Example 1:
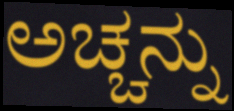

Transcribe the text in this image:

ಅಚ್ಚನ್ನು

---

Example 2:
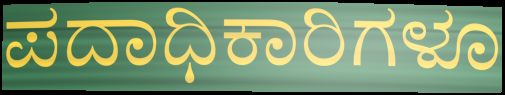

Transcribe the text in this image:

ಪದಾಧಿಕಾರಿಗಳೂ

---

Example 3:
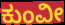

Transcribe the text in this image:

ಕುಂವೀ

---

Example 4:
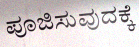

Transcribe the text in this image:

ಪೂಜಿಸುವುದಕ್ಕೆ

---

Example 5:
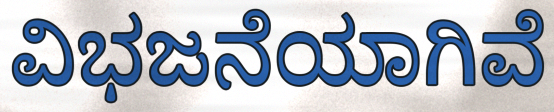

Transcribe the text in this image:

ವಿಭಜನೆಯಾಗಿವೆ